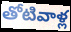
తోటివాళ్ల